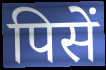
पिसें